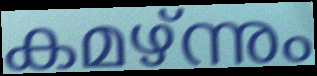
കമഴ്ന്നും